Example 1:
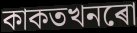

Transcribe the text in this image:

কাকতখনৰো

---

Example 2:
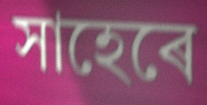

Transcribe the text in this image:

সাহেৰে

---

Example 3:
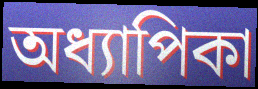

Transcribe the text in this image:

অধ্যাপিকা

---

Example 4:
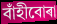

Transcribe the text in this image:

বাঁহীবোৰা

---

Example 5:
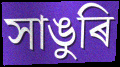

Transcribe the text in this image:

সাঙুৰি